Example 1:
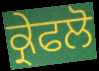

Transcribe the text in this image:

ਕ੍ਰੇਫਲੋ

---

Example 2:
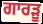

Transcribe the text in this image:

ਗਾਰੜੂ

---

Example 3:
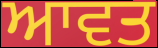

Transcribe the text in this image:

ਆਵਤ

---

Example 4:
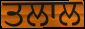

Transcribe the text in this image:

ਤਲਾਲ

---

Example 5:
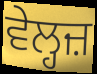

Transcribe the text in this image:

ਵੇਲ੍ਹਜ਼